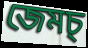
জেমচ্